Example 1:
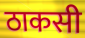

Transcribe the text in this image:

ठाकसी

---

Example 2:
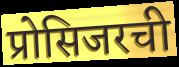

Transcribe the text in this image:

प्रोसिजरची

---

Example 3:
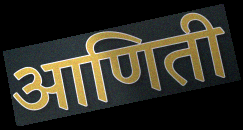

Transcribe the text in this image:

आणिती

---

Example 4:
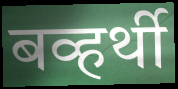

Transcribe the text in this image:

बव्हर्थी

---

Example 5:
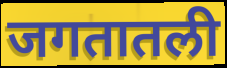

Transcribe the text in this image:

जगतातली